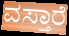
ವಸ್ತಾರೆ